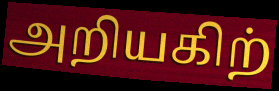
அறியகிற்